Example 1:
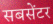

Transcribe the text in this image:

सबसेंटर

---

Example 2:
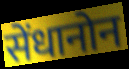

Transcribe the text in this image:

सेंधानोन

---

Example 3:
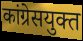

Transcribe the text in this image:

कांग्रेसयुक्त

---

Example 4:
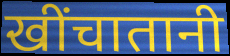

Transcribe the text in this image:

खींचातानी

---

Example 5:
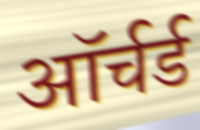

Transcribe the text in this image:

ऑर्चर्ड